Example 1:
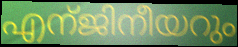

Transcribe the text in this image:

എന്ജിനീയറും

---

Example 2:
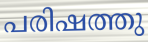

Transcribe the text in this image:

പരിഷത്തു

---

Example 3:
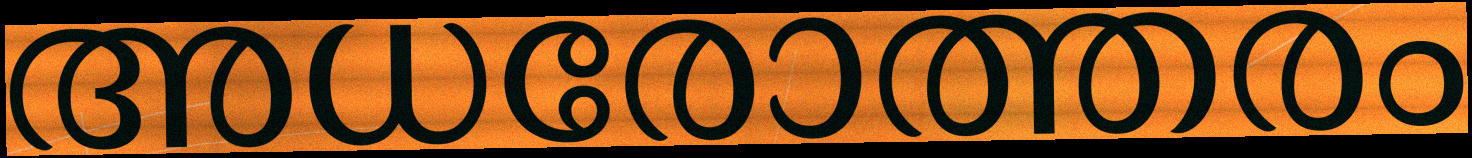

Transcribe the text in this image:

അധരോത്തരം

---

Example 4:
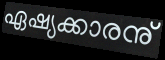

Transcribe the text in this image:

ഏഷ്യക്കാരനു്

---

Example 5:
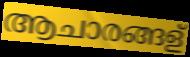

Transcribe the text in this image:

ആചാരങ്ങള്